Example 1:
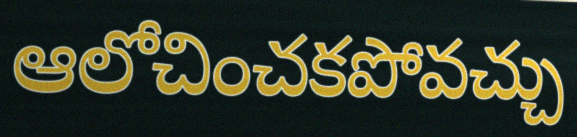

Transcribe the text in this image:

ఆలోచించకపోవచ్చు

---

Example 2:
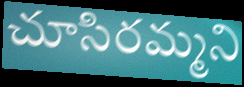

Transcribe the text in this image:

చూసిరమ్మని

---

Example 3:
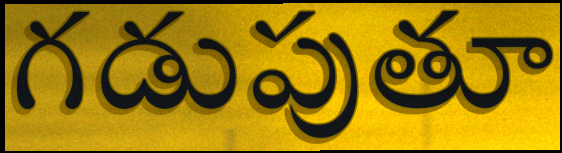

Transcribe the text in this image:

గడుపుతూ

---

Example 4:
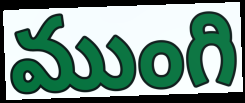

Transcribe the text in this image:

ముంగి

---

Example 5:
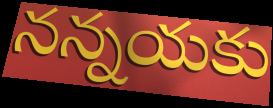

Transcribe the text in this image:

నన్నయకు